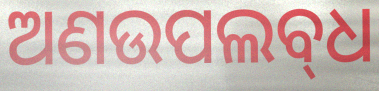
ଅଣଉପଲବ୍‌ଧ